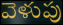
వెళుపు